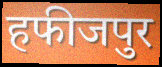
हफीजपुर